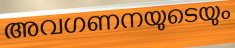
അവഗണനയുടെയും